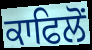
ਕਾਫਿਲੋਂ